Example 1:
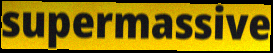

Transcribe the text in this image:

supermassive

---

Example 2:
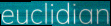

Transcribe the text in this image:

euclidian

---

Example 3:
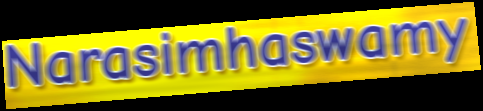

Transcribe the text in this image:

Narasimhaswamy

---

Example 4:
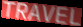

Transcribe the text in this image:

TRAVEL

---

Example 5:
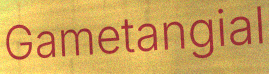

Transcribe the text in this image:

Gametangial